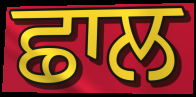
ਛਾਲ